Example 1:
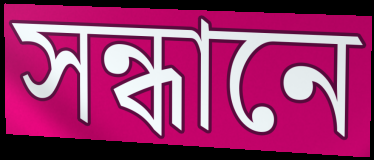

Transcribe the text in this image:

সন্ধানে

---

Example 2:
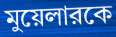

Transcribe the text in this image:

মুয়েলারকে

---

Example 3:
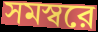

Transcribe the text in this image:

সমস্বরে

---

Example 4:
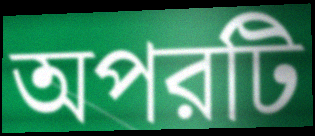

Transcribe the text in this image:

অপরটি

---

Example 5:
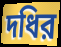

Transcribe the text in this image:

দধির